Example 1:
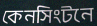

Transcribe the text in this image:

কেনসিংটনে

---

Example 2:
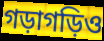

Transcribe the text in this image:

গড়াগড়িও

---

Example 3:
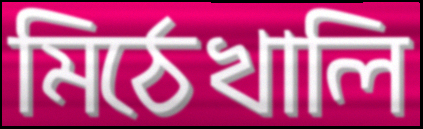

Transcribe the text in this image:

মিঠেখালি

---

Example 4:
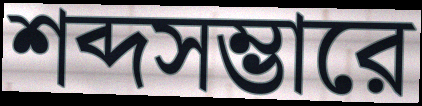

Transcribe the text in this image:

শব্দসম্ভারে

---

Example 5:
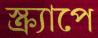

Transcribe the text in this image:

স্ক্র্যাপে